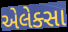
એલેક્સા